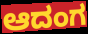
ಆದಂಗ